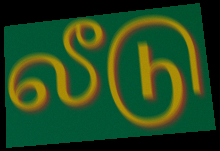
லீடு